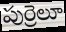
పుర్రెలూ